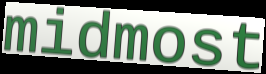
midmost